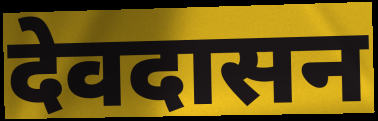
देवदासन